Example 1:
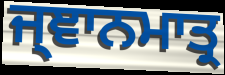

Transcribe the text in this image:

ਜ੍ਞਾਨਮਾਤ੍ਰ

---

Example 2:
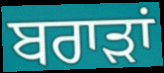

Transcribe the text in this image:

ਬਰਾੜਾਂ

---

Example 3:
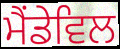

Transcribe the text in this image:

ਮੈਂਡੇਵਿਲ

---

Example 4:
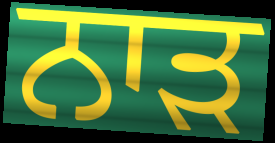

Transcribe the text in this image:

ਨਾੜ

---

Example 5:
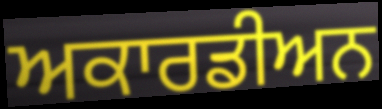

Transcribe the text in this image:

ਅਕਾਰਡੀਅਨ